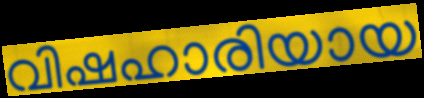
വിഷഹാരിയായ